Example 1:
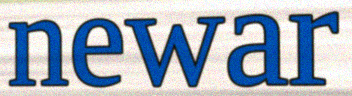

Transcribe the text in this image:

newar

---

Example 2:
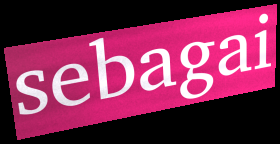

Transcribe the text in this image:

sebagai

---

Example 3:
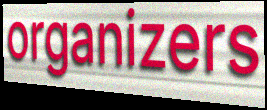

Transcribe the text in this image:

organizers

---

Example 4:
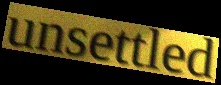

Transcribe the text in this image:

unsettled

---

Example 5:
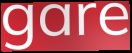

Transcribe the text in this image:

gare